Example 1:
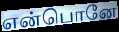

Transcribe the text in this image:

என்பொனே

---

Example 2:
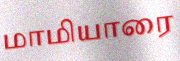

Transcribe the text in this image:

மாமியாரை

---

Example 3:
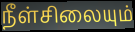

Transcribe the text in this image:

நீள்சிலையும்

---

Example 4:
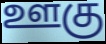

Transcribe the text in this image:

ஊகு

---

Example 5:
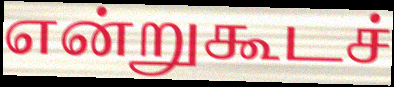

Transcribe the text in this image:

என்றுகூடச்